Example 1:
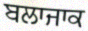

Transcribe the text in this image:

ਬਲਾਜਾਕ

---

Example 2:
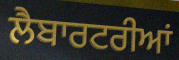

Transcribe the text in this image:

ਲੈਬਾਰਟਰੀਆਂ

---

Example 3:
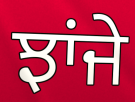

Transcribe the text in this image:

ਝਾਂਜੇ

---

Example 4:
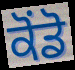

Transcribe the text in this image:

ਕੋਂਡੋ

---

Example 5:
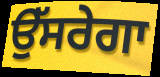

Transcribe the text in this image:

ਉੱਸਰੇਗਾ